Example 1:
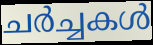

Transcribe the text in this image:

ചർച്ചകൾ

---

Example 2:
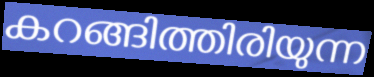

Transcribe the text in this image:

കറങ്ങിത്തിരിയുന്ന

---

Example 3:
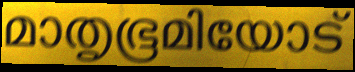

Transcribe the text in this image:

മാതൃഭൂമിയോട്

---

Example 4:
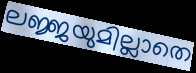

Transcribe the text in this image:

ലജ്ജയുമില്ലാതെ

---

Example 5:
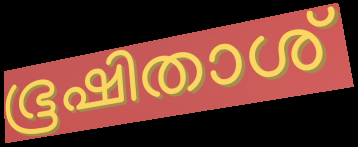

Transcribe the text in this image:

ഭൂഷിതാശ്